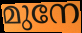
മുനേ